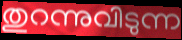
തുറന്നുവിടുന്ന